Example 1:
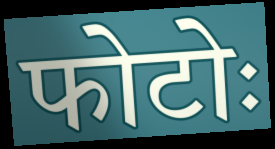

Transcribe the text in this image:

फोटोः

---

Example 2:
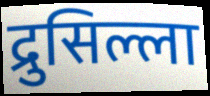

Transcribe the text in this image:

द्रुसिल्ला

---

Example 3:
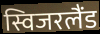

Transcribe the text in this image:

स्विजरलैंड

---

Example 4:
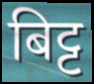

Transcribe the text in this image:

बिट्ट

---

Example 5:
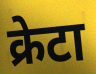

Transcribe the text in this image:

क्रेटा